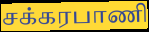
சக்கரபாணி